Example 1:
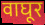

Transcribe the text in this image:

वाघूर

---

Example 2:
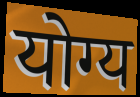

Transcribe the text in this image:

योग्य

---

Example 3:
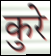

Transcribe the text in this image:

कुरे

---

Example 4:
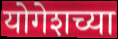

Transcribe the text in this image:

योगेशच्या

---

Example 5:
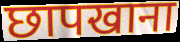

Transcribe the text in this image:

छापखाना